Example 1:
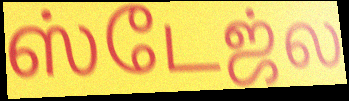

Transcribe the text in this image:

ஸ்டேஜ்ல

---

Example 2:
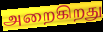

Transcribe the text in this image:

அறைகிறது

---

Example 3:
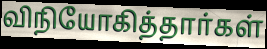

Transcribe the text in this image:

விநியோகித்தார்கள்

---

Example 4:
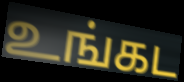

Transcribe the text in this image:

உங்கட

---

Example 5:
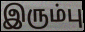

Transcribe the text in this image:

இரும்பு